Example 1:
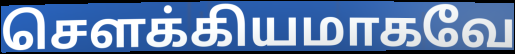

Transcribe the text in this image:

சௌக்கியமாகவே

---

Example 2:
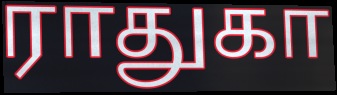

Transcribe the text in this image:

ராதுகா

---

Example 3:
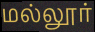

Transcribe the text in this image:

மல்லூர்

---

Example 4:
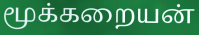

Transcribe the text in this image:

மூக்கறையன்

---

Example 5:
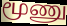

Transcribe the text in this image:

மூணு